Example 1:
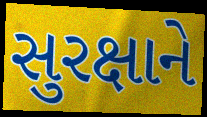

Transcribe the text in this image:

સુરક્ષાને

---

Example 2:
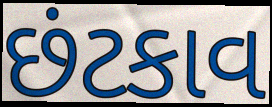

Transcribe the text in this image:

છંટકાવ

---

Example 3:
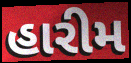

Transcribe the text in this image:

હારીમ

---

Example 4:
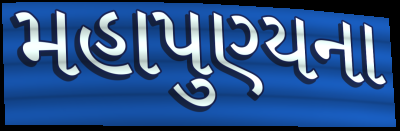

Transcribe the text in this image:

મહાપુણ્યના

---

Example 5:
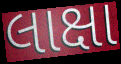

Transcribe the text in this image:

લાક્ષા